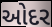
ઓદર